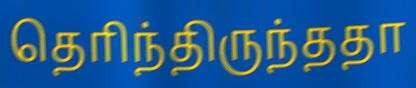
தெரிந்திருந்ததா